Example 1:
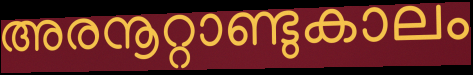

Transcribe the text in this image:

അരനൂറ്റാണ്ടുകാലം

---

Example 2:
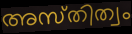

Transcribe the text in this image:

അസ്‌തിത്വം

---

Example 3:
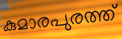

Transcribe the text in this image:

കുമാരപുരത്ത്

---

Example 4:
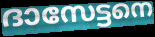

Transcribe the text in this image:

ദാസേട്ടനെ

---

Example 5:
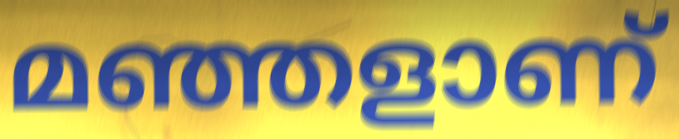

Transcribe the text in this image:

മഞ്ഞളാണ്